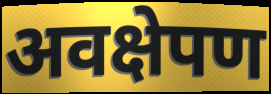
अवक्षेपण